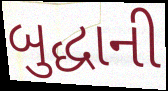
બુદ્ધાની